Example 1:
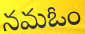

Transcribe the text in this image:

నమఓం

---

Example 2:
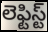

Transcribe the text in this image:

లెఫ్టిస్ట్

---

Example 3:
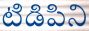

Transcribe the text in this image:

టిడిపిని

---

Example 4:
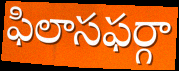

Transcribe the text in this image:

ఫిలాసఫర్గా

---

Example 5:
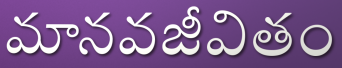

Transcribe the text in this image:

మానవజీవితం